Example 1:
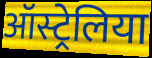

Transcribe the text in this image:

ऑस्‍ट्रेलिया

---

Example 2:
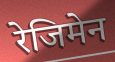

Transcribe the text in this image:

रेजिमेन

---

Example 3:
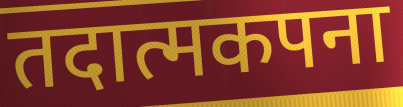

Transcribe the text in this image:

तदात्मकपना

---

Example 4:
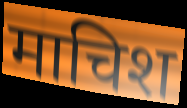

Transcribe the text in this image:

माचिश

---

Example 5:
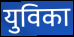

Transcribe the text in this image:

युविका